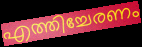
എത്തിച്ചേരണം